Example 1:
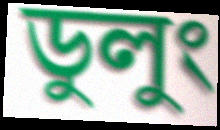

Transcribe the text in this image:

ডুলুং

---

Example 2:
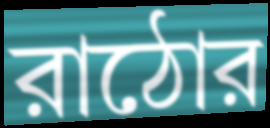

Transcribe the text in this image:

রাঠোর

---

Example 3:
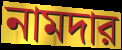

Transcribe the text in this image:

নামদার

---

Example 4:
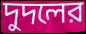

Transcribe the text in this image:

দুদলের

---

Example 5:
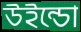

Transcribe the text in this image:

উইন্ডো